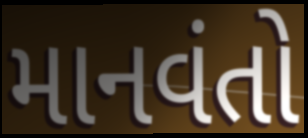
માનવંતો